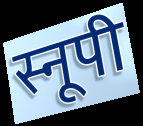
स्नूपी